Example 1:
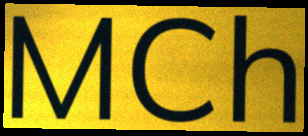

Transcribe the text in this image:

MCh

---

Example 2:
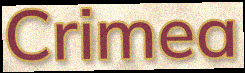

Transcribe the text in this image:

Crimea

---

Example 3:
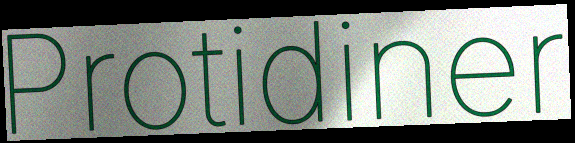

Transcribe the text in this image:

Protidiner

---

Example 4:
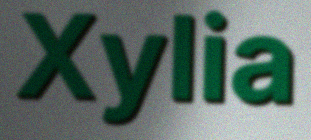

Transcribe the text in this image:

Xylia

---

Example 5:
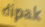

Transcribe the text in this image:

dipak